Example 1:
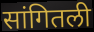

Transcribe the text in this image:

सांगितली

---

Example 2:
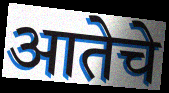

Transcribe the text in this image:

आतेचे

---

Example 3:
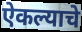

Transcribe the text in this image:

ऐकल्याचे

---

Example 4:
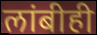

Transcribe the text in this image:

लांबीही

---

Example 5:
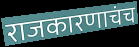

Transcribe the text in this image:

राजकारणाचंच